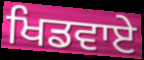
ਖਿਡਵਾਏ